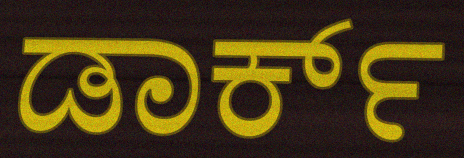
ಡಾರ್ಕ್